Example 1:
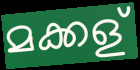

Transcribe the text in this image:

മക്കള്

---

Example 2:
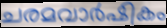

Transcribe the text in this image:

ചരമവാർഷികം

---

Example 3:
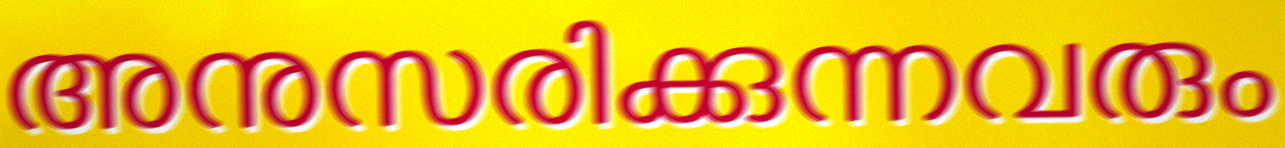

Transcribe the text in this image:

അനുസരിക്കുന്നവരും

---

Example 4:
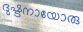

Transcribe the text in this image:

ദുഷ്ടനായോരു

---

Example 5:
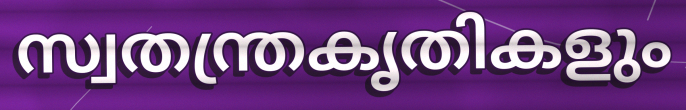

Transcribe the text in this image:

സ്വതന്ത്രകൃതികളും